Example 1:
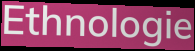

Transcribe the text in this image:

Ethnologie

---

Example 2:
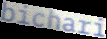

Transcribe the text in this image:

bichari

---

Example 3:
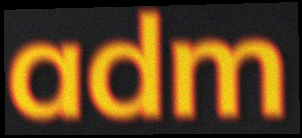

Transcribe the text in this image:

adm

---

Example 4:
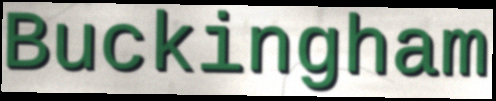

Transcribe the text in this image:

Buckingham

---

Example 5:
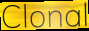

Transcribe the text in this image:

Clonal